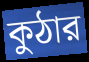
কুঠার